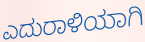
ಎದುರಾಳಿಯಾಗಿ